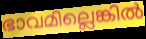
ഭാവമില്ലെങ്കിൽ